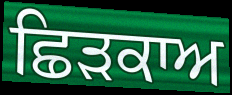
ਛਿੜਕਾਅ